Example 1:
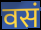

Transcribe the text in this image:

वसं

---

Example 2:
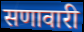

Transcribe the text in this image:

सणावारी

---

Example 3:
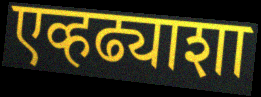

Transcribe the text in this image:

एव्हढ्याशा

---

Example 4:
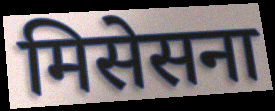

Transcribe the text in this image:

मिसेसना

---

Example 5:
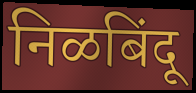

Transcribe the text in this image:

निळबिंदू